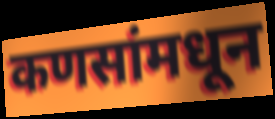
कणसांमधून